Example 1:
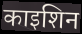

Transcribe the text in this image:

काइशिन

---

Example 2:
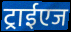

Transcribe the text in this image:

ट्राईएज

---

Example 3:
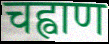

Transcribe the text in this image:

चह्वाण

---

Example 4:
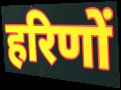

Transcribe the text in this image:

हरिणों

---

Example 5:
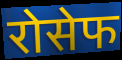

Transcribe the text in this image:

रोसेफ